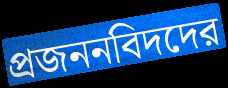
প্রজননবিদদের